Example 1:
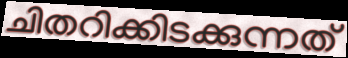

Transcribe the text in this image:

ചിതറിക്കിടക്കുന്നത്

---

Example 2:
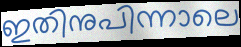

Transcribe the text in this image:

ഇതിനുപിന്നാലെ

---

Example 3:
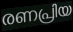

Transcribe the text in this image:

രണപ്രിയ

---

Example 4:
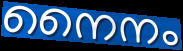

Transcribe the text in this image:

നൈനം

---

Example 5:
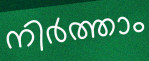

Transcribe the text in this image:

നിർത്താം